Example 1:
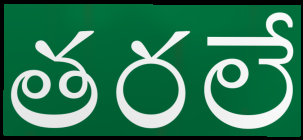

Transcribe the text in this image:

తరలే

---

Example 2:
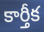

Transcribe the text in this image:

కార్తీక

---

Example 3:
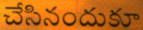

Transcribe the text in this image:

చేసినందుకూ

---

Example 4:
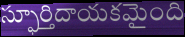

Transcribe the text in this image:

స్ఫూర్తిదాయకమైంది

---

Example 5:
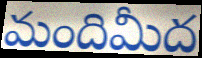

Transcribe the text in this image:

మందిమీద